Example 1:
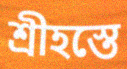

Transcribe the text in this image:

শ্রীহস্তে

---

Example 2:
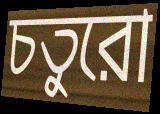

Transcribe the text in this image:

চতুরো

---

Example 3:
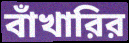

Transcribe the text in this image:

বাঁখারির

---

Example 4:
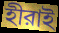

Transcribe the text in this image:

হীরাই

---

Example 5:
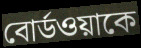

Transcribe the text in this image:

বোর্ডওয়াকে